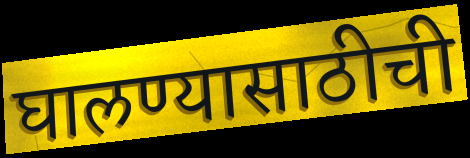
घालण्यासाठीची